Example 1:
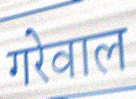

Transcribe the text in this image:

गरेवाल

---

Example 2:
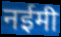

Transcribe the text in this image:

नईमी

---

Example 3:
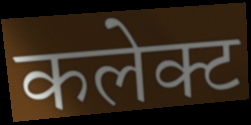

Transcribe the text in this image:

कलेक्ट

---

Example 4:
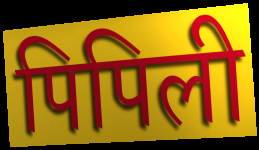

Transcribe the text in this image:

पिपिली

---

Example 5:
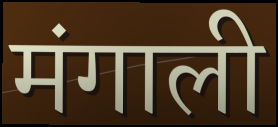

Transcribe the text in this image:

मंगाली